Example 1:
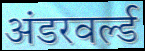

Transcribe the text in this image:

अंडरवर्ल्ड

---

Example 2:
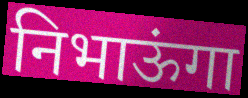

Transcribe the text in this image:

निभाऊंगा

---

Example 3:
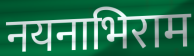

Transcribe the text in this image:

नयनाभिराम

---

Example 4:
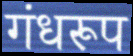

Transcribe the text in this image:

गंधरूप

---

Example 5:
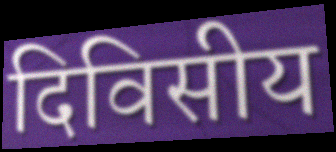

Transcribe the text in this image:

दिविसीय